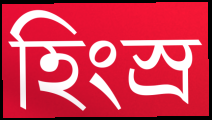
হিংস্ৰ